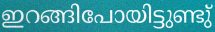
ഇറങ്ങിപോയിട്ടുണ്ടു്